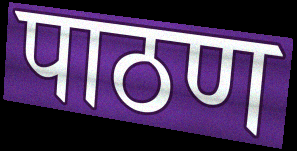
पाठण